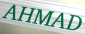
AHMAD